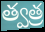
త్వత్ర